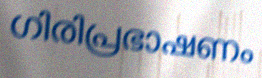
ഗിരിപ്രഭാഷണം